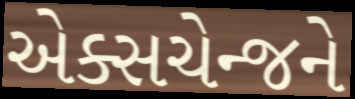
એક્સચેન્જને